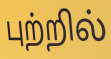
புற்றில்